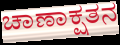
ಚಾಣಾಕ್ಷತನ